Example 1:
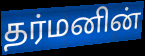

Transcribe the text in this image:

தர்மனின்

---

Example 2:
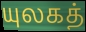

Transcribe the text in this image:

யுலகத்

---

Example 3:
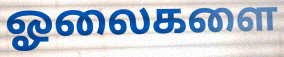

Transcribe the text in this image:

ஓலைகளை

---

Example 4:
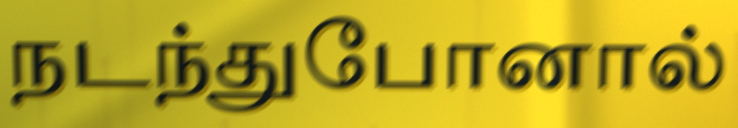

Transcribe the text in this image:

நடந்துபோனால்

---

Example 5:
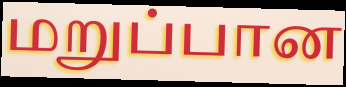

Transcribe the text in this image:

மறுப்பான